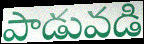
పాడువడి